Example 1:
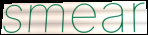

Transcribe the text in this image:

smear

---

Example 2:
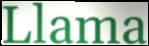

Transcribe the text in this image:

Llama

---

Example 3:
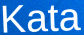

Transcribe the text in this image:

Kata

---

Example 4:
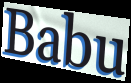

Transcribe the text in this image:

Babu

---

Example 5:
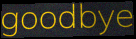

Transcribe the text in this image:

goodbye